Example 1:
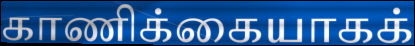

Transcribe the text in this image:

காணிக்கையாகக்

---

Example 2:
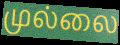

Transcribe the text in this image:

முல்லை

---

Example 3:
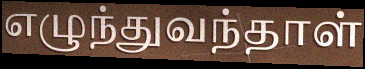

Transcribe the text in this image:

எழுந்துவந்தாள்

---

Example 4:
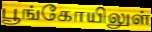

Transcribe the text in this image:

பூங்கோயிலுள்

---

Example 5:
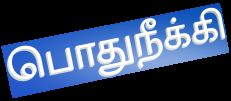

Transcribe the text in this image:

பொதுநீக்கி